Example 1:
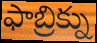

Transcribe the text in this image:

ఫాబ్రిక్ను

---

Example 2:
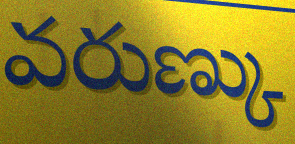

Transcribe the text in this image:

వరుణ్కు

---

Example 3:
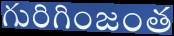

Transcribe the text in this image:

గురిగింజంత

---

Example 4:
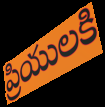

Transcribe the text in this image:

ప్రియులకి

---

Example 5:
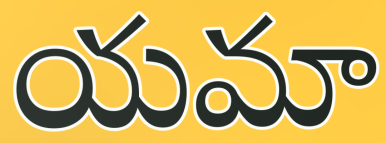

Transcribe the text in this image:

యమా